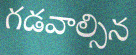
గడవాల్సిన